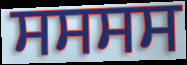
ਸਸਸਸ